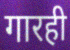
गारही